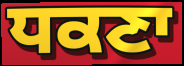
ਧਕਣਾ